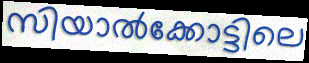
സിയാൽക്കോട്ടിലെ